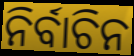
ନିର୍ବାଚିନ